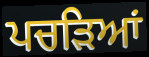
ਪਚੜਿਆਂ